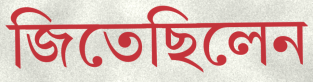
জিতেছিলেন